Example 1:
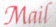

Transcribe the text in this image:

Mail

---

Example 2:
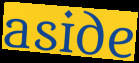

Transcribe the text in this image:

aside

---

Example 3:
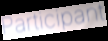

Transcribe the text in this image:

Participant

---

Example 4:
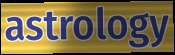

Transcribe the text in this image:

astrology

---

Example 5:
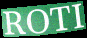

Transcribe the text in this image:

ROTI